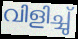
വിളിച്ചു്